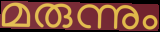
മരുന്നും